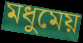
মধুমেয়